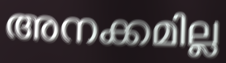
അനക്കമില്ല